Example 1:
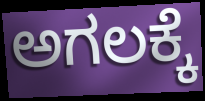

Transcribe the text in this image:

ಅಗಲಕ್ಕೆ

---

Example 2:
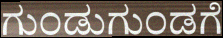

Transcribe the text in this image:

ಗುಂಡುಗುಂಡಗೆ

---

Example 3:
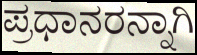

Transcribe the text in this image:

ಪ್ರಧಾನರನ್ನಾಗಿ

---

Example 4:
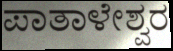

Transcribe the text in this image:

ಪಾತಾಳೇಶ್ವರ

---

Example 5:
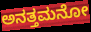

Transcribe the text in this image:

ಅನತ್ತಮನೋ